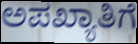
ಅಪಖ್ಯಾತಿಗೆ